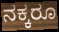
ನಕ್ಕರೂ